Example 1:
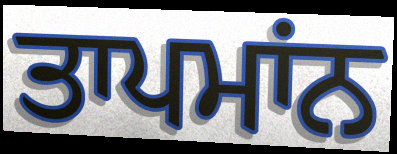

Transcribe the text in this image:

ਤਾਪਮਾਂਨ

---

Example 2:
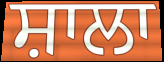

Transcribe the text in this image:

ਸ਼ਾਲਾ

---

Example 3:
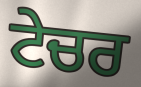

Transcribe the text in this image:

ਟੇਚਰ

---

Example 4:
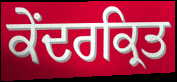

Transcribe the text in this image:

ਕੇਂਦਰਕ੍ਰਿਤ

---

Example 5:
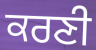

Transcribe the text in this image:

ਕਰਣੀ